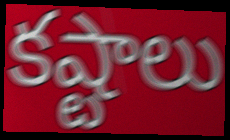
కష్టాలు